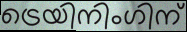
ട്രെയിനിംഗിന്